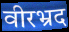
वीरभ्रद